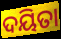
ଦୟିତା